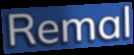
Remal